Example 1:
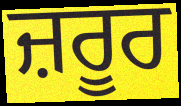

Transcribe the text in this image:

ਜ਼ਰੂਰ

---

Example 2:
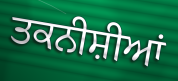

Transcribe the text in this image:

ਤਕਨੀਸ਼ੀਆਂ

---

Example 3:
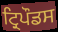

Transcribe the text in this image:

ਟ੍ਰਿਪੌਡਸ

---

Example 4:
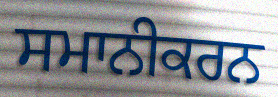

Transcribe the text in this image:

ਸਮਾਨੀਕਰਨ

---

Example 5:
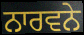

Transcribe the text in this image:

ਨਾਰਵਨੇ